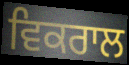
ਵਿਕਰਾਲ